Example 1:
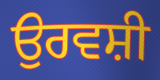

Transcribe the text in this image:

ਉਰਵਸ਼ੀ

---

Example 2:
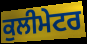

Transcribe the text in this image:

ਕੁਲੀਮੇਟਰ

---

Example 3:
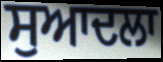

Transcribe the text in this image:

ਸੁਆਦਲਾ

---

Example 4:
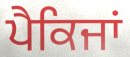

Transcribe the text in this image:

ਪੈਕਿਜਾਂ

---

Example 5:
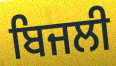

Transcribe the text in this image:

ਬਿਜਲੀ